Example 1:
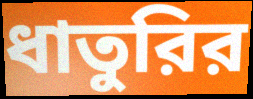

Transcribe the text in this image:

ধাতুরির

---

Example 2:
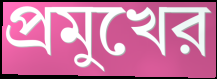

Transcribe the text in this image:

প্রমুখের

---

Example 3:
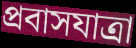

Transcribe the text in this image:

প্রবাসযাত্রা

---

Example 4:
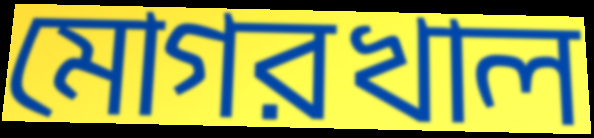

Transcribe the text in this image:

মোগরখাল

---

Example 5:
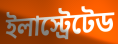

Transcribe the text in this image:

ইলাস্ট্রেটেড